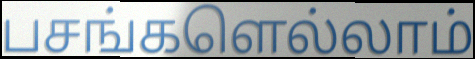
பசங்களெல்லாம்